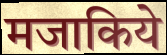
मजाकिये